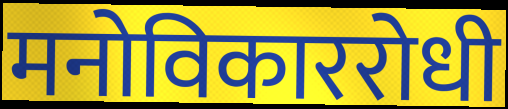
मनोविकाररोधी